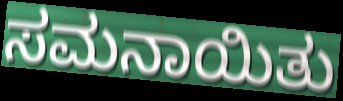
ಸಮನಾಯಿತು